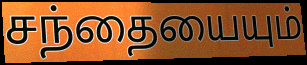
சந்தையையும்